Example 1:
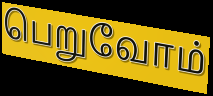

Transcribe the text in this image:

பெறுவோம்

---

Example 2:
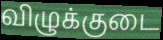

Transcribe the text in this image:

விழுக்குடை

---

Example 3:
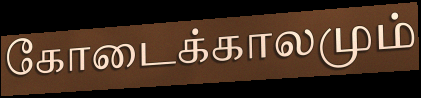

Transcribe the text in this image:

கோடைக்காலமும்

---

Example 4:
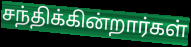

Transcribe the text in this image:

சந்திக்கின்றார்கள்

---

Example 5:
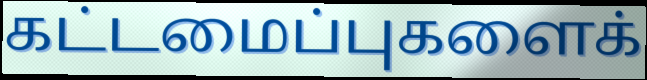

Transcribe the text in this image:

கட்டமைப்புகளைக்